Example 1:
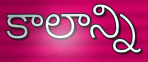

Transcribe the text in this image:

కాలాన్ని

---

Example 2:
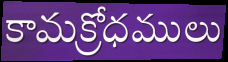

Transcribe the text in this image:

కామక్రోధములు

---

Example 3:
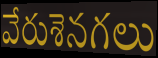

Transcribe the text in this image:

వేరుశెనగలు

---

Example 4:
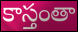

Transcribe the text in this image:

కాస్తంతా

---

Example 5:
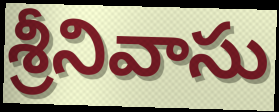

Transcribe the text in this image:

శ్రీనివాసు